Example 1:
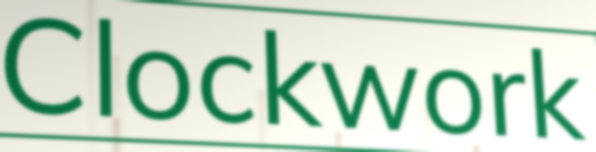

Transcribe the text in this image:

Clockwork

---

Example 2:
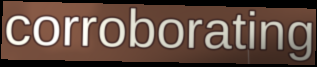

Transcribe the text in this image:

corroborating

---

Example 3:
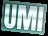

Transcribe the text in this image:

UMI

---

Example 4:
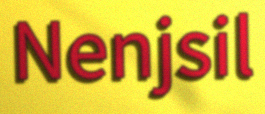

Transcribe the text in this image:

Nenjsil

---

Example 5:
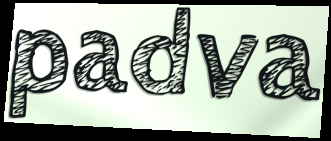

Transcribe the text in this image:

padva